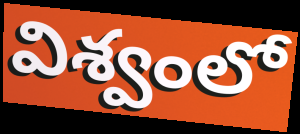
విశ్వంలో